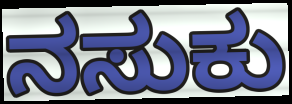
ನಸುಕು